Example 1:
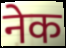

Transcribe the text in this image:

नेक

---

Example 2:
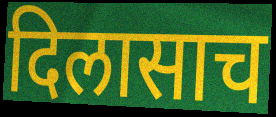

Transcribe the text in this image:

दिलासाच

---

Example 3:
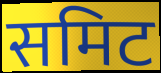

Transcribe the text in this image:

समिट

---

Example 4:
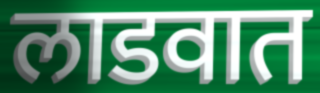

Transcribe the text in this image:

लाडवात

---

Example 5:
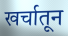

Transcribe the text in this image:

खर्चातून